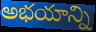
అభయాన్ని